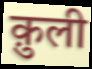
क़ुली